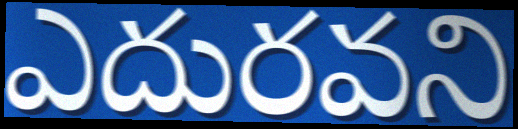
ఎదురవని